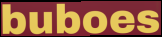
buboes